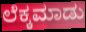
ಲೆಕ್ಕಮಾಡು